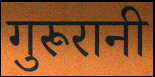
गुरूरानी